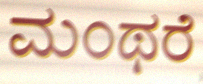
ಮಂಥರೆ